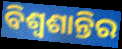
ବିଶ୍ୱଶାନ୍ତିର